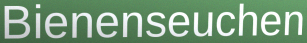
Bienenseuchen